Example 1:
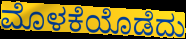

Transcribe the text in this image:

ಮೊಳಕೆಯೊಡೆದು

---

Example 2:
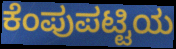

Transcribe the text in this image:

ಕೆಂಪುಪಟ್ಟಿಯ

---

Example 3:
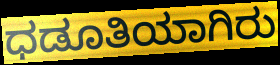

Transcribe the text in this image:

ಧಡೂತಿಯಾಗಿರು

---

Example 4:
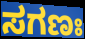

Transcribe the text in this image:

ಸಗಣಃ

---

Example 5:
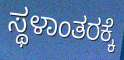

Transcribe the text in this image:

ಸ್ಥಳಾಂತರಕ್ಕೆ